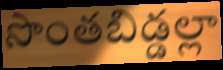
సొంతబిడ్డల్లా